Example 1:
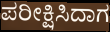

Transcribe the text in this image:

ಪರೀಕ್ಷಿಸಿದಾಗ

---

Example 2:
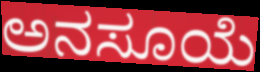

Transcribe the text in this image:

ಅನಸೂಯೆ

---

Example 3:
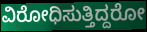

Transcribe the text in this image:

ವಿರೋಧಿಸುತ್ತಿದ್ದರೋ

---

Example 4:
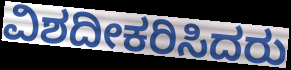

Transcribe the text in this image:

ವಿಶದೀಕರಿಸಿದರು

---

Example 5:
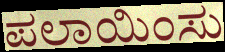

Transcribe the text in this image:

ಪಲಾಯಿಂಸು